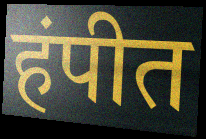
हंपीत